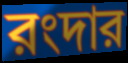
রংদার